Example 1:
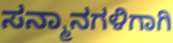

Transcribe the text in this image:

ಸನ್ಮಾನಗಳಿಗಾಗಿ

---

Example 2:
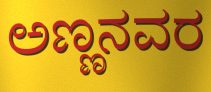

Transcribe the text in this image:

ಅಣ್ಣನವರ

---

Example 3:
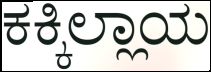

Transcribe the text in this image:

ಕಕ್ಕಿಲ್ಲಾಯ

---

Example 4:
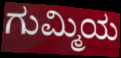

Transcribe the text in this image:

ಗುಮ್ಮಿಯ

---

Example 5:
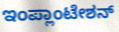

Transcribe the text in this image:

ಇಂಪ್ಲಾಂಟೇಶನ್